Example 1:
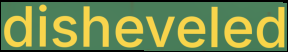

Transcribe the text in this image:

disheveled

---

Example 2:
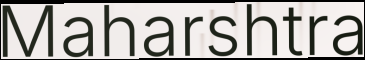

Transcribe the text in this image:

Maharshtra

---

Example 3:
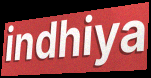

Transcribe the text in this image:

indhiya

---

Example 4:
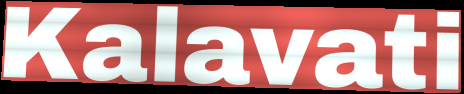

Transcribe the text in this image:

Kalavati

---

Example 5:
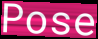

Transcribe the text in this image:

Pose